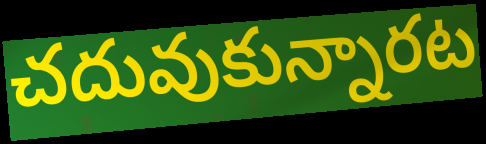
చదువుకున్నారట